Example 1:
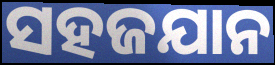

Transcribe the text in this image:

ସହଜଯାନ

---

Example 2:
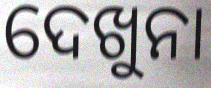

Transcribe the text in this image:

ଦେଖୁନା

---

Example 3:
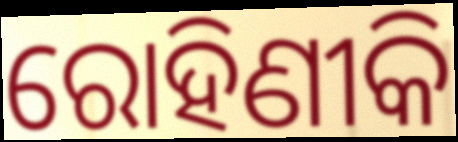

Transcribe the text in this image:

ରୋହିଣୀକି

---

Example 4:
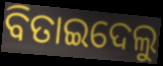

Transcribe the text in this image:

ବିତାଇଦେଲୁ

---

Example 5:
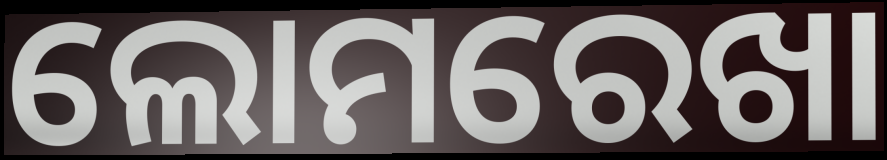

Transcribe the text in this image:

ଲୋମରେଖା